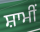
ਸ਼ਾਮੀਂ